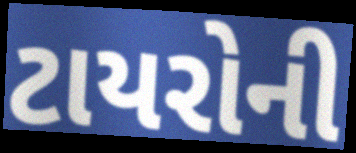
ટાયરોની